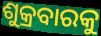
ଶୁକ୍ରବାରକୁ